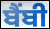
ਬੈਂਬੀ